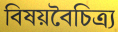
বিষয়বৈচিত্র্য